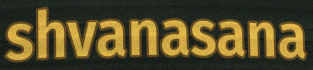
shvanasana